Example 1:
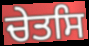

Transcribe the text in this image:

ਚੇਤਸਿ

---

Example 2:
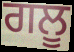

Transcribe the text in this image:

ਗਲੂ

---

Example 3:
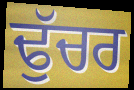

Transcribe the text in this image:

ਢੁੱਚਰ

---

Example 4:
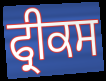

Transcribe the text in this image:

ਫ੍ਰੀਕਸ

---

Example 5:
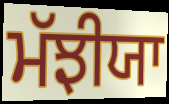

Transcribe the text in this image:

ਮੱਝੀਯਾ